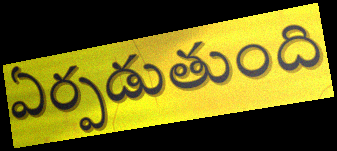
ఏర్పడుతుంది